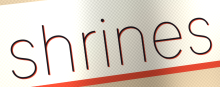
shrines